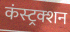
कंस्‍ट्रक्‍शन